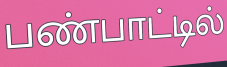
பண்பாட்டில்